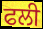
ਫਲੀ